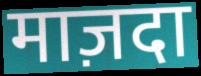
माज़दा